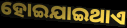
ହୋଇଯାଇଥାଏ